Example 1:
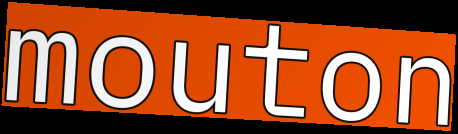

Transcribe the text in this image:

mouton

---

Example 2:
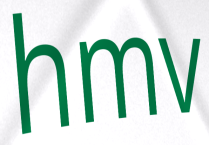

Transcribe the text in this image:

hmv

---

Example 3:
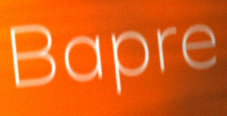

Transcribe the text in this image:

Bapre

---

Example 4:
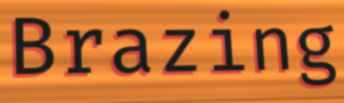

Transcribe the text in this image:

Brazing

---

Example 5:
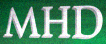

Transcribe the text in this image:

MHD